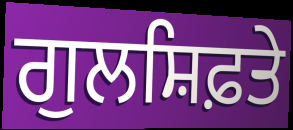
ਗੁਲਸ਼ਿਫ਼ਤੇ